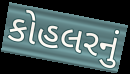
કોહલરનું